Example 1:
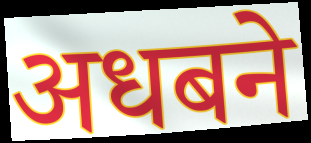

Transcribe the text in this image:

अधबने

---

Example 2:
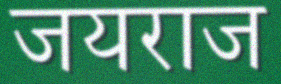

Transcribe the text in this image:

जयराज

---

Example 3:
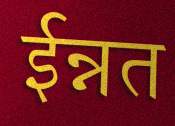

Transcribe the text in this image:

ईन्नत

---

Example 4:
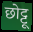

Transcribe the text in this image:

छोट्टू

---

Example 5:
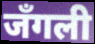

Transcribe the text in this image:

जँगली